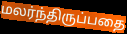
மலர்ந்திருப்பதை